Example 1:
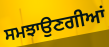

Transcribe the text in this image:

ਸਮਝਾਉਣਗੀਆਂ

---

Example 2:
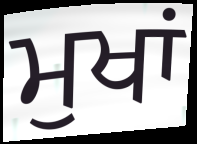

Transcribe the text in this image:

ਮੁਖਾਂ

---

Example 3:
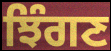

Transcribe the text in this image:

ਝਿੰਗਣ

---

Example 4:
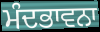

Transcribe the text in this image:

ਮੰਦਭਾਵਨਾ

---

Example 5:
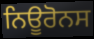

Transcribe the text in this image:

ਨਿਊਰੋਨਸ